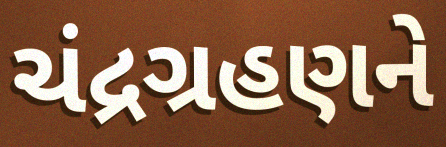
ચંદ્રગ્રહણને